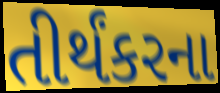
તીર્થંકરના